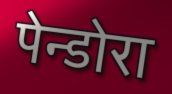
पेन्डोरा